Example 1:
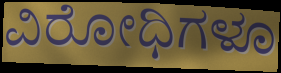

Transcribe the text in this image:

ವಿರೋಧಿಗಳೂ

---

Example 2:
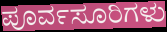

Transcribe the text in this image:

ಪೂರ್ವಸೂರಿಗಳು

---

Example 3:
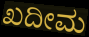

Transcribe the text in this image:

ಖದೀಮ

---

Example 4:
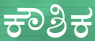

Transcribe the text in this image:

ಕೌಶಿಕ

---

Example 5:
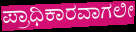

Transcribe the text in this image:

ಪ್ರಾಧಿಕಾರವಾಗಲೀ